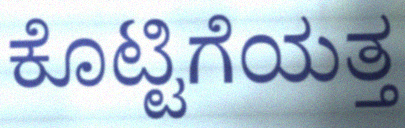
ಕೊಟ್ಟಿಗೆಯತ್ತ